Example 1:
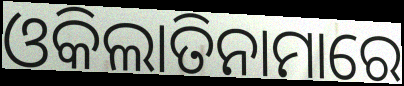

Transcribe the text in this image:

ଓକିଲାତିନାମାରେ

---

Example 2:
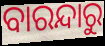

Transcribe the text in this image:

ବାରନ୍ଦାରୁ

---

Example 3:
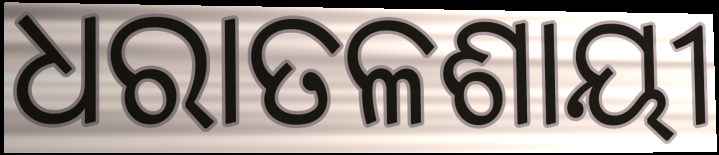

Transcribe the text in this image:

ଧରାତଳଶାୟୀ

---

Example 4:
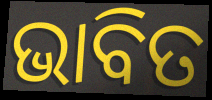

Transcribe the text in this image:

ଭାବିତ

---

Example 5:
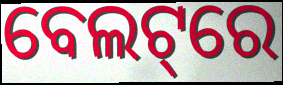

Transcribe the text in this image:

ବେଲଟ୍‌ରେ